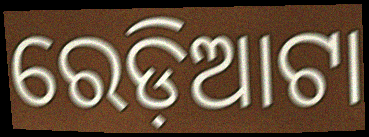
ରେଡ଼ିଆଟା